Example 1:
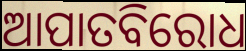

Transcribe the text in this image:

ଆପାତବିରୋଧ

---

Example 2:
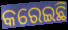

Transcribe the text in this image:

କରେଇଛି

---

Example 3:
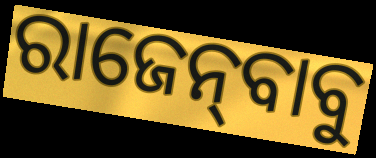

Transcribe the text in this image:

ରାଜେନ୍‌ବାବୁ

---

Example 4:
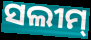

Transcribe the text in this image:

ସଲୀମ୍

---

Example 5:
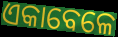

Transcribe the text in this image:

ଏକାବେଳେ